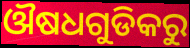
ଔଷଧଗୁଡିକରୁ